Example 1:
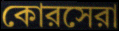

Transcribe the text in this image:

কোরসেরা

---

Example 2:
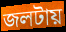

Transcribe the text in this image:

জলটায়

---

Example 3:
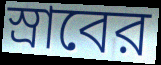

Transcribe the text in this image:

স্রাবের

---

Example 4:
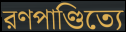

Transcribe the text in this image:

রণপাণ্ডিত্যে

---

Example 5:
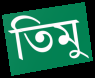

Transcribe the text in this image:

তিমু